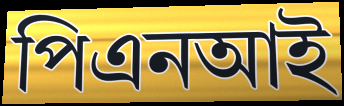
পিএনআই